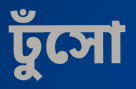
ঢুঁসো